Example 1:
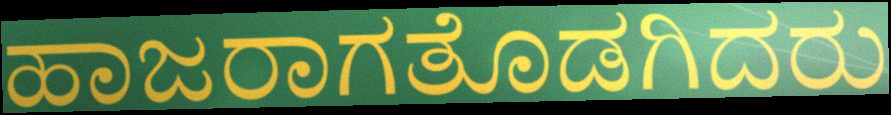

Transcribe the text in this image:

ಹಾಜರಾಗತೊಡಗಿದರು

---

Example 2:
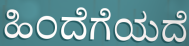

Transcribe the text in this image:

ಹಿಂದೆಗೆಯದೆ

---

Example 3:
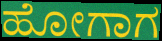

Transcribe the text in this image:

ಹೋಗಾಗ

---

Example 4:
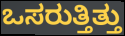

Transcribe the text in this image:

ಒಸರುತ್ತಿತ್ತು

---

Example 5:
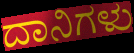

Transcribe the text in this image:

ದಾನಿಗಳು